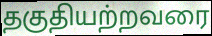
தகுதியற்றவரை